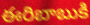
ఈరిబాబుకి